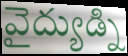
వైద్యుడ్ని